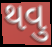
થવુ